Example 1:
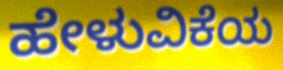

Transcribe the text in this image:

ಹೇಳುವಿಕೆಯ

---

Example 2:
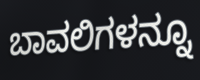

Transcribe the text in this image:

ಬಾವಲಿಗಳನ್ನೂ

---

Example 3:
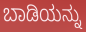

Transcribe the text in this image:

ಬಾಡಿಯನ್ನು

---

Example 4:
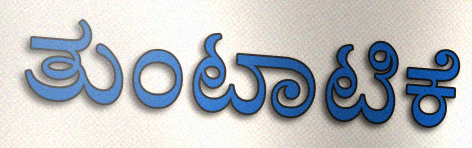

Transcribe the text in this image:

ತುಂಟಾಟಿಕೆ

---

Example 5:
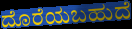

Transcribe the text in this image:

ದೊರೆಯಬಹುದೆ